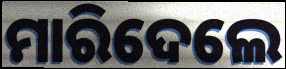
ମାରିଦେଲେ